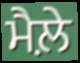
ਮੈਲ਼ੇ